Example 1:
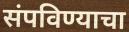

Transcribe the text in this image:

संपविण्याचा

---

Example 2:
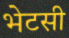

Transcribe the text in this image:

भेटसी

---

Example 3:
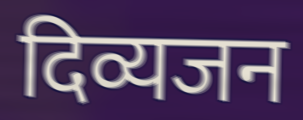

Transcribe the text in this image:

दिव्यजन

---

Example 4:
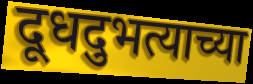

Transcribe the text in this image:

दूधदुभत्याच्या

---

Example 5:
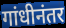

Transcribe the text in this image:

गांधीनंतर